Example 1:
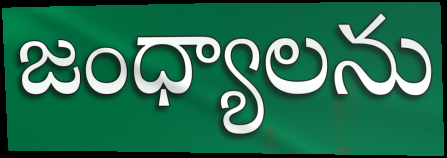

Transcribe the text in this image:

జంధ్యాలను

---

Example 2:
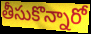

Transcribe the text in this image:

తీసుకొన్నారో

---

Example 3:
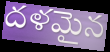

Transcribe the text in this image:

దళమైన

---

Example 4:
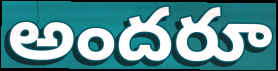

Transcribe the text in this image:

అందరూ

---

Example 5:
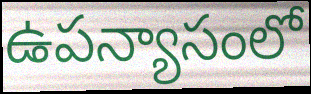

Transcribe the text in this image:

ఉపన్యాసంలో